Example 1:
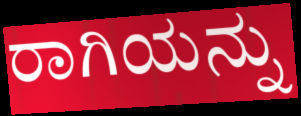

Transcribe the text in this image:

ರಾಗಿಯನ್ನು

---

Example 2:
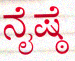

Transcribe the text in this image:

ನೈಷ್ಠೆ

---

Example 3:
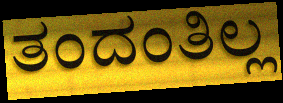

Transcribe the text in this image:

ತಂದಂತಿಲ್ಲ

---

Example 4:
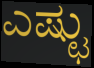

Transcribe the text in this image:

ಎಷ್ಟು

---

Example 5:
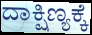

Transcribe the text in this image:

ದಾಕ್ಷಿಣ್ಯಕ್ಕೆ